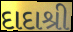
દાદાશ્રી